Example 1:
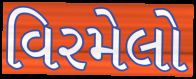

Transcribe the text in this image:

વિરમેલો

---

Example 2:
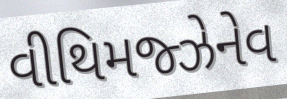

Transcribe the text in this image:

વીથિમજ્ઝેનેવ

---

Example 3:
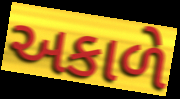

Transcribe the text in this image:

અકાળે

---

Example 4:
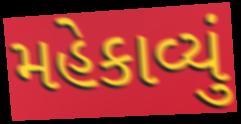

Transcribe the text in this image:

મહેકાવ્યું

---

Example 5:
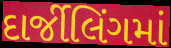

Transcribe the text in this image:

દાર્જીલિંગમાં